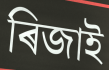
ৰিজাই